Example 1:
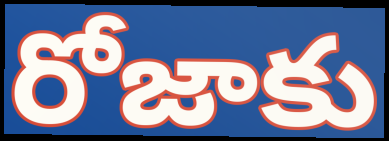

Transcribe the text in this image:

రోజాకు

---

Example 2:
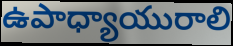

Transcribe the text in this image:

ఉపాధ్యాయురాలి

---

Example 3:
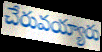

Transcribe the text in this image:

చేరువయ్యారు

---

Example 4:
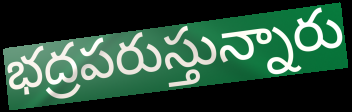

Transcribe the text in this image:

భద్రపరుస్తున్నారు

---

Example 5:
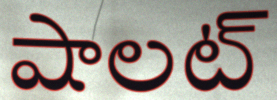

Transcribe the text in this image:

షాలట్